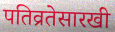
पतिव्रतेसारखी